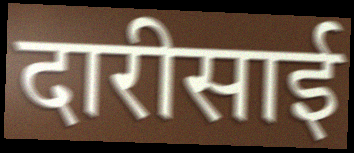
दारीसाई